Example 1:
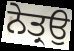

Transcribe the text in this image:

ਨੇਤ੍ਰਉ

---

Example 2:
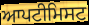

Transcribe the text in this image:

ਆਪਟੀਮਿਸਟ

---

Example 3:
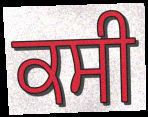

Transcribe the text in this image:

ਕਸੀ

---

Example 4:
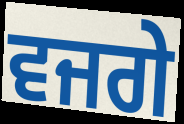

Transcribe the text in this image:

ਵਜਗੇ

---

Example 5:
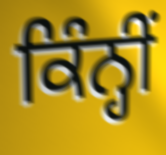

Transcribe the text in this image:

ਕਿੰਨ੍ਹੀਂ